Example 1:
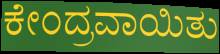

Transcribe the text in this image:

ಕೇಂದ್ರವಾಯಿತು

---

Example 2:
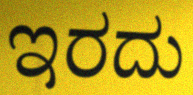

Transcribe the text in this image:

ಇರದು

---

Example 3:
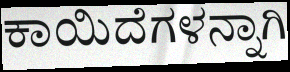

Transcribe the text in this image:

ಕಾಯಿದೆಗಳನ್ನಾಗಿ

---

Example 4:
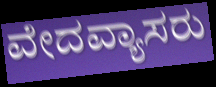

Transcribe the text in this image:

ವೇದವ್ಯಾಸರು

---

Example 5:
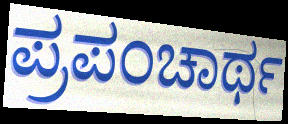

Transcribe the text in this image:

ಪ್ರಪಂಚಾರ್ಥ